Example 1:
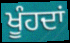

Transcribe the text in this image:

ਖੂੰਹਦਾਂ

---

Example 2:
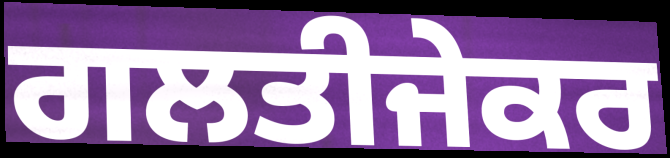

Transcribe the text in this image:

ਗਲਤੀਜੇਕਰ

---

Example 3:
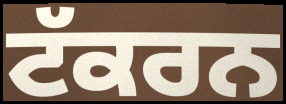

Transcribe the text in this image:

ਟੱਕਰਨ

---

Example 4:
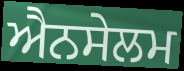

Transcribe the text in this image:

ਐਨਸੇਲਮ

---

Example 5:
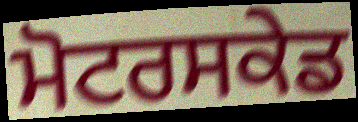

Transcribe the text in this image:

ਮੋਟਰਸਕੇਡ